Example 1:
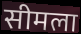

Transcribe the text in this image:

सीमला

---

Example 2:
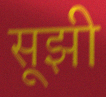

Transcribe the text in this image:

सूझी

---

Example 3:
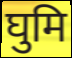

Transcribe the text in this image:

घुमि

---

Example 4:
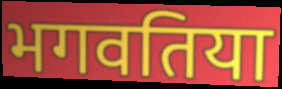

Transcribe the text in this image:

भगवतिया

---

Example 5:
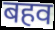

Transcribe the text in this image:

बहव